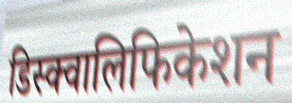
डिस्क्वालिफिकेशन